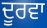
ਦੂਰਵਾ